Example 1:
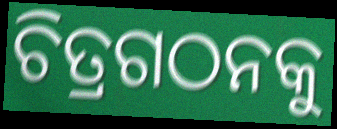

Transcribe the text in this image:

ଚିତ୍ରଗଠନକୁ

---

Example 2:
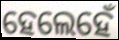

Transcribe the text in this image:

ହେଲେହେଁ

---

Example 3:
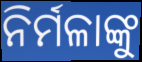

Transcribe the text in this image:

ନିର୍ମଳାଙ୍କୁ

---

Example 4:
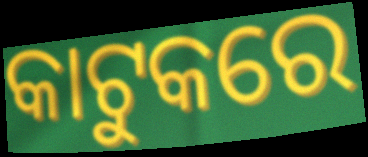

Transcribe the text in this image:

କାଟୁକରେ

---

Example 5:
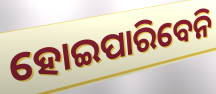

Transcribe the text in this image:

ହୋଇପାରିବେନି